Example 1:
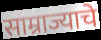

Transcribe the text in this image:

साम्राज्याचे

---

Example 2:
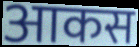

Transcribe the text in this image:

आकस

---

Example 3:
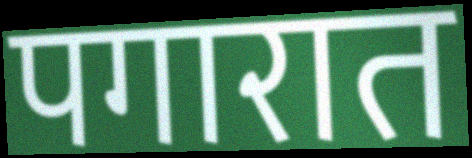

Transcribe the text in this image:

पगारात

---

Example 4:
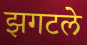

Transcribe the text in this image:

झगटले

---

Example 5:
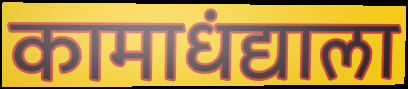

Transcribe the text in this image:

कामाधंद्याला